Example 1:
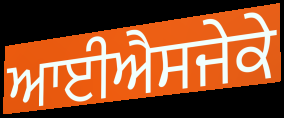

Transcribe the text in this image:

ਆਈਐਸਜੇਕੇ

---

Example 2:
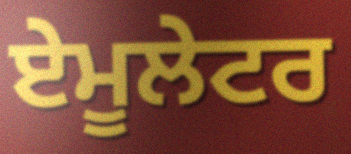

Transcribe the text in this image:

ਏਮੂਲੇਟਰ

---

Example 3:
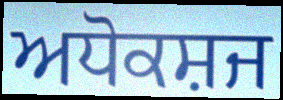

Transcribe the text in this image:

ਅਧੋਕਸ਼ਜ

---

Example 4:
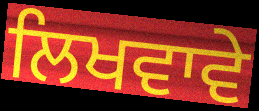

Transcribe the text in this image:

ਲਿਖਵਾਵੇ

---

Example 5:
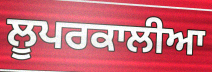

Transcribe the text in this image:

ਲੂਪਰਕਾਲੀਆ